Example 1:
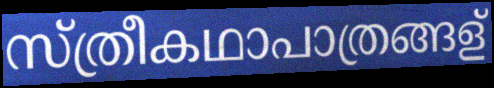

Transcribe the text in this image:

സ്ത്രീകഥാപാത്രങ്ങള്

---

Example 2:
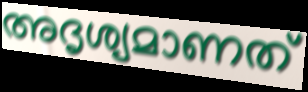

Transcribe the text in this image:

അദൃശ്യമാണത്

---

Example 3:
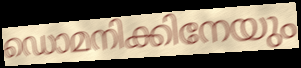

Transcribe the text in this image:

ഡൊമനിക്കിനേയും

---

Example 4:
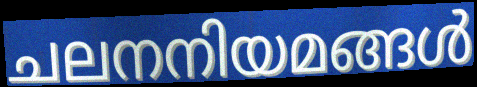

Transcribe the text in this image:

ചലനനിയമങ്ങൾ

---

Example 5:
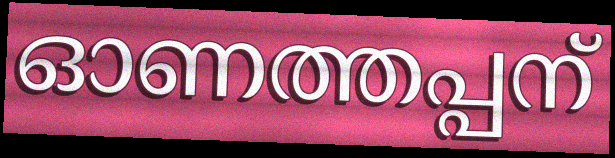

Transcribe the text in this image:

ഓണത്തപ്പന്